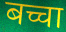
बच्चा